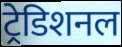
ट्रेडिशनल